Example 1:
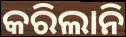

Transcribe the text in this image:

କରିଲାନି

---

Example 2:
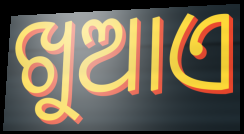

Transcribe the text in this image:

ଖୁଆଏ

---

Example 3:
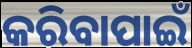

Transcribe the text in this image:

କରିବାପାଇଁ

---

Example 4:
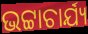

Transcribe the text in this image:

ଭଟ୍ଟାଚାର୍ଯ୍ୟ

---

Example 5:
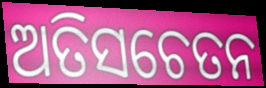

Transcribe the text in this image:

ଅତିସଚେତନ